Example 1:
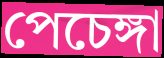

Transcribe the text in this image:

পেচেঙ্গা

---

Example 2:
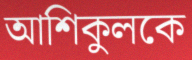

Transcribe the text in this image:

আশিকুলকে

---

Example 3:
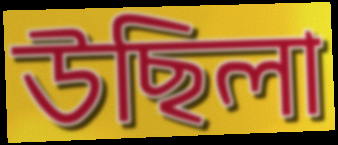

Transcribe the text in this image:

উছিলা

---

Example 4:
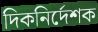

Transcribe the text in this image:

দিকনির্দেশক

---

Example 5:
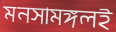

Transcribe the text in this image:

মনসামঙ্গলই